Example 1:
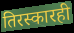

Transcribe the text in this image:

तिरस्कारही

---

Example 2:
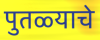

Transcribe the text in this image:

पुतळ्याचे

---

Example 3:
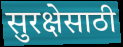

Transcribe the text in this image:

सुरक्षेसाठी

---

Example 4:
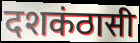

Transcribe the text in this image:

दशकंठासी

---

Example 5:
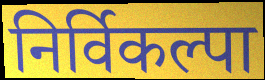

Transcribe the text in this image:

निर्विकल्पा